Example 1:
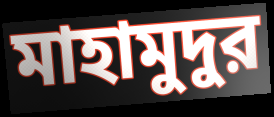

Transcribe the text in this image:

মাহামুদুর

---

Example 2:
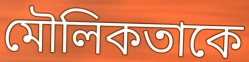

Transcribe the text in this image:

মৌলিকতাকে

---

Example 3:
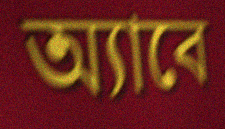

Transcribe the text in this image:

অ্যাবে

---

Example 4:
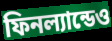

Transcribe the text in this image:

ফিনল্যান্ডেও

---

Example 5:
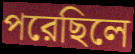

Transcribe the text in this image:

পরেছিলে